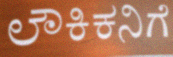
ಲೌಕಿಕನಿಗೆ